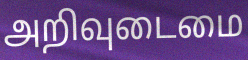
அறிவுடைமை